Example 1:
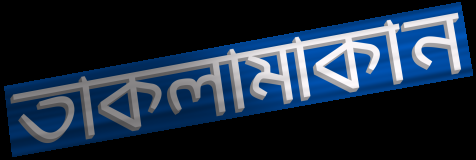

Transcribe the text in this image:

তাকলামাকান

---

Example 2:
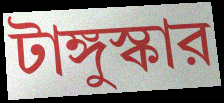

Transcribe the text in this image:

টাঙ্গুস্কার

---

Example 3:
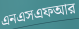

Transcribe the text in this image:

এনএসএফআর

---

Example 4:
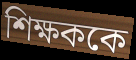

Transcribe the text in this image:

শিক্ষককে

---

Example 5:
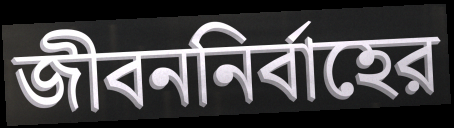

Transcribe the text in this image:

জীবননির্বাহের